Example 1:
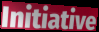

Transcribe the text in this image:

Initiative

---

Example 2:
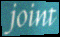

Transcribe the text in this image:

joint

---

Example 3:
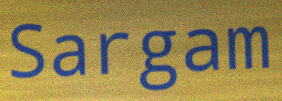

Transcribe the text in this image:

Sargam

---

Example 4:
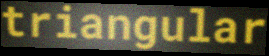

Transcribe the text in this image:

triangular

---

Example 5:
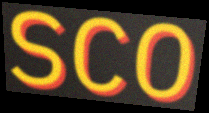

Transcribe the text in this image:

SCO